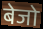
बेजो